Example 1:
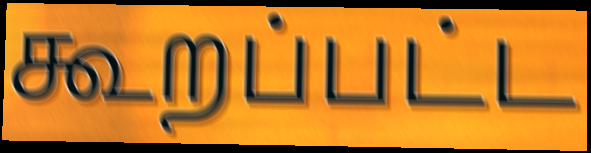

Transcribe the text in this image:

கூறப்பட்ட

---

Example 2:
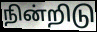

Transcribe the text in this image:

நின்றிடு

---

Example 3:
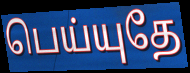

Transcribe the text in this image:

பெய்யுதே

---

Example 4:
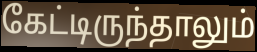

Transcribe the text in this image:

கேட்டிருந்தாலும்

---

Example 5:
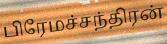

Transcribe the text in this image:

பிரேமச்சந்திரன்